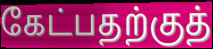
கேட்பதற்குத்